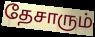
தேசாரும்